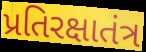
પ્રતિરક્ષાતંત્ર